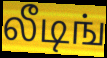
லீடிங்